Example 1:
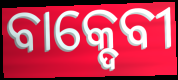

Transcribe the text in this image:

ବାକ୍ଦେବୀ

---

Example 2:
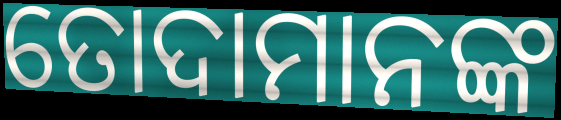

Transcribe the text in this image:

ତୋଦାମାନଙ୍କ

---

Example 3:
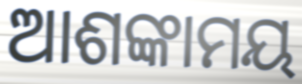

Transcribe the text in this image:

ଆଶଙ୍କାମୟ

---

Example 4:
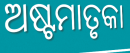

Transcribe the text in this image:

ଅଷ୍ଟମାତୃକା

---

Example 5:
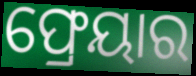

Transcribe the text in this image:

ଫ୍ରେୟାର